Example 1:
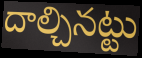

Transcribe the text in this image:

దాల్చినట్టు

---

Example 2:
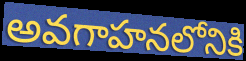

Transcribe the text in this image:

అవగాహనలోనికి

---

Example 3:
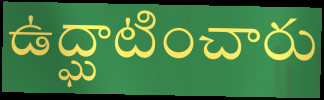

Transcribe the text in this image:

ఉద్ఘాటించారు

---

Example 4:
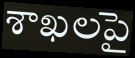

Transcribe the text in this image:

శాఖలపై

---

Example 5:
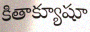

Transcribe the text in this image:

కితాక్యూషూ